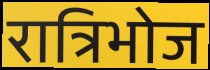
रात्रिभोज